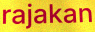
rajakan